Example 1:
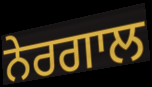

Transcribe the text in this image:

ਨੇਰਗਾਲ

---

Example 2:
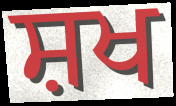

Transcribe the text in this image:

ਸ਼ਖ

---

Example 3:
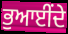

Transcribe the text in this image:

ਭੁਆਈਂਦੇ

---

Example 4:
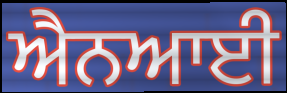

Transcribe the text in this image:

ਐਨਆਈ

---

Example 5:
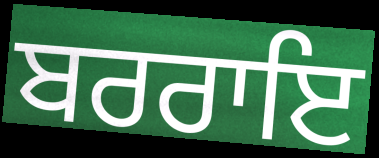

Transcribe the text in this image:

ਬਰਰਾਇ